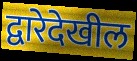
द्वारेदेखील